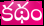
కథం